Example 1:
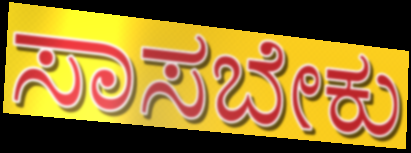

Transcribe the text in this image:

ಸಾಸಬೇಕು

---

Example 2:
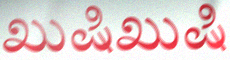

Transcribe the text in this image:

ಖುಷಿಖುಷಿ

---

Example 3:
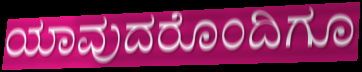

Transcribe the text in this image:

ಯಾವುದರೊಂದಿಗೂ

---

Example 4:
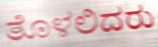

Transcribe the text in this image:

ತೊಳಲಿದರು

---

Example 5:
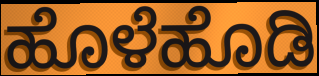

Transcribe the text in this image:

ಹೊಳೆಹೊಡಿ